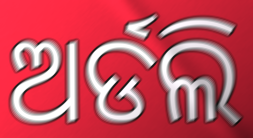
ଅର୍ଡଲି